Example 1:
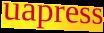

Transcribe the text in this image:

uapress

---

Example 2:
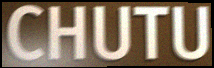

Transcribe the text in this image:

CHUTU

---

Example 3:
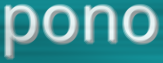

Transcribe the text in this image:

pono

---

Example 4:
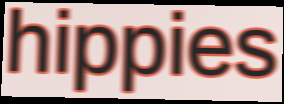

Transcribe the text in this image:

hippies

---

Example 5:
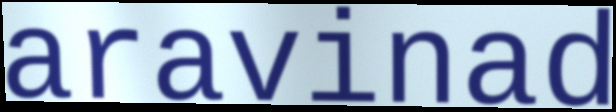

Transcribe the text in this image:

aravinad